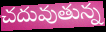
చదువుతున్న